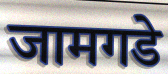
जामगडे